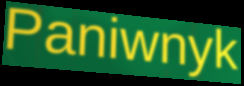
Paniwnyk